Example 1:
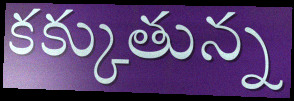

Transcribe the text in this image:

కక్కుతున్న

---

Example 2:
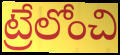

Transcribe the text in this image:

ట్రేలోంచి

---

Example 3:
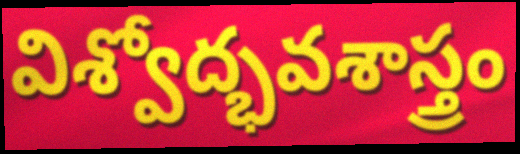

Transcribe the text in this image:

విశ్వోద్భవశాస్త్రం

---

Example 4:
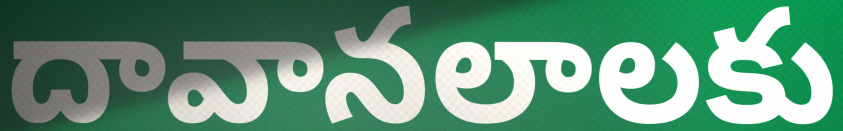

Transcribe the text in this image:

దావానలాలకు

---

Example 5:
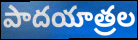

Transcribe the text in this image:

పాదయాత్రల